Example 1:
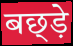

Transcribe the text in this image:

बछ्ड़े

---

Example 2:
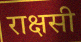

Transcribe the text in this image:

राक्षसी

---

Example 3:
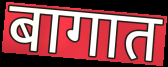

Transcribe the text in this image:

बागात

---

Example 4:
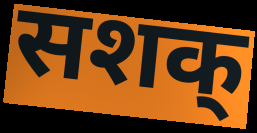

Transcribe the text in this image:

सशक्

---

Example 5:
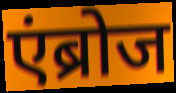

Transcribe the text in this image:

एंब्रोज